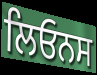
ਲਿਓਨਸ